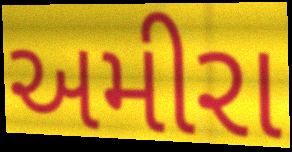
અમીરા